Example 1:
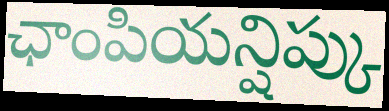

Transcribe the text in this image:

ఛాంపియన్షిప్కు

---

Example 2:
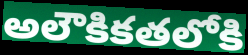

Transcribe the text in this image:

అలౌకికతలోకి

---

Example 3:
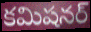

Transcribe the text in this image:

కమిషనర్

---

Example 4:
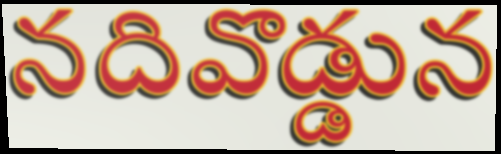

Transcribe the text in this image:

నదివొడ్డున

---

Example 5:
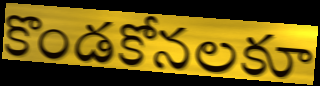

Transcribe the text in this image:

కొండకోనలకూ